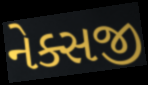
નેક્સજી